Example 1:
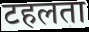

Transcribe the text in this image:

टहलता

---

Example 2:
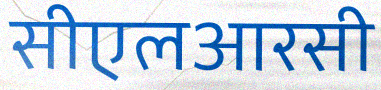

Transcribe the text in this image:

सीएलआरसी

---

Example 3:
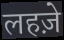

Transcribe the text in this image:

लहज़े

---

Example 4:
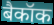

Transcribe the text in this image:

बैकॉक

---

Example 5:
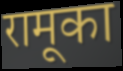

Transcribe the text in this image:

रामूका